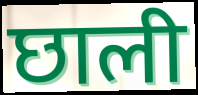
छाली